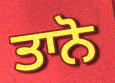
ਤਾਨੋ